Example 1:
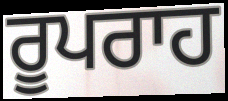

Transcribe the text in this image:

ਰੂਪਰਾਹ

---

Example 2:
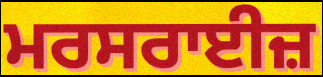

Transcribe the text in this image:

ਮਰਸਰਾਈਜ਼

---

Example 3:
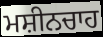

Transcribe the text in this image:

ਮਸ਼ੀਨਚਾਹ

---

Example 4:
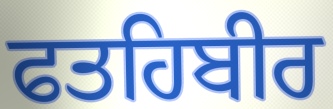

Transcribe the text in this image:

ਫਤਹਿਬੀਰ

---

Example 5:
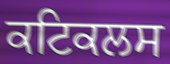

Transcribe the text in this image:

ਕਟਿਕਲਸ